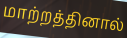
மாற்றத்தினால்